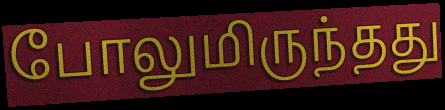
போலுமிருந்தது